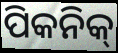
ପିକନିକ୍